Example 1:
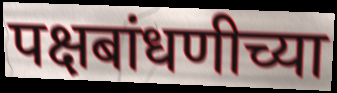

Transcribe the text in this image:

पक्षबांधणीच्या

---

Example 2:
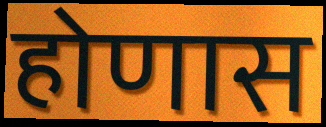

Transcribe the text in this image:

होणास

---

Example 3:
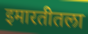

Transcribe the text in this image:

इमारतीतला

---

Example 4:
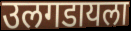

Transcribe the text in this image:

उलगडायला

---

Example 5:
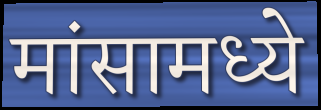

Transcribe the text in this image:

मांसामध्ये